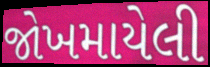
જોખમાયેલી